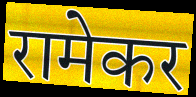
रामेकर